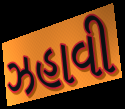
ઝહાવી